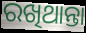
ରଖିଥାନ୍ତା